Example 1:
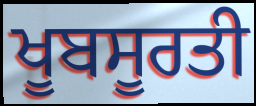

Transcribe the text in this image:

ਖੂਬਸੂਰਤੀ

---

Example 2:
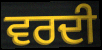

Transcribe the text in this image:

ਵਰਦੀ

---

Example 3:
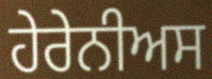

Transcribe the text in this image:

ਹੇਰੇਨੀਅਸ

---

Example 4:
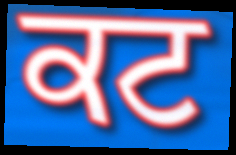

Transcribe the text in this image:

ਕਟ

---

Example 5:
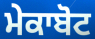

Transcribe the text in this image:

ਮੇਕਾਬੋਟ